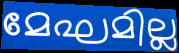
മേഘമില്ല